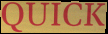
QUICK